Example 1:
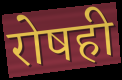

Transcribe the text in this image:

रोषही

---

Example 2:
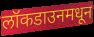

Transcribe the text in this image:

लॉकडाउनमधून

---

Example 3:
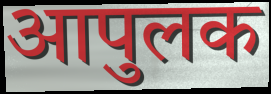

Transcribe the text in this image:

आपुलक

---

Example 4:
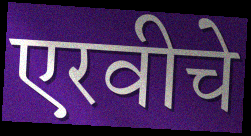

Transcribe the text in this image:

एरवीचे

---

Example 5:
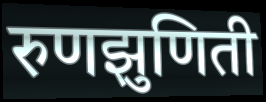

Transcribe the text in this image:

रुणझुणिती